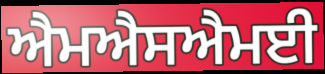
ਐਮਐਸਐਮਈ